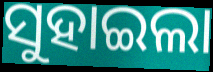
ସୁହାଇଲା